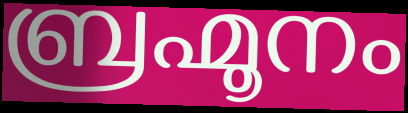
ബ്രഹ്മൂനം